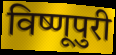
विष्णूपुरी